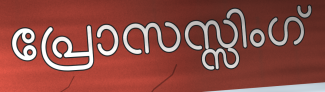
പ്രോസസ്സിംഗ്